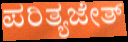
ಪರಿತ್ಯಜೇತ್